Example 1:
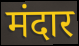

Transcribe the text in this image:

मंदार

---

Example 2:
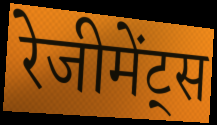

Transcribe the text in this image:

रेजीमेंट्स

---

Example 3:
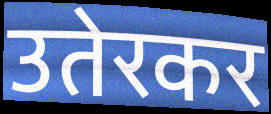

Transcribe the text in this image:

उतेरकर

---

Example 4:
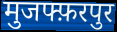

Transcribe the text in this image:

मुजफ्फ़रपुर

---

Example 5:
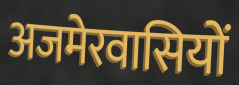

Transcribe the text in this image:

अजमेरवासियों